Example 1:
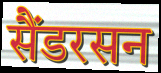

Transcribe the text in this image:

सैंडरसन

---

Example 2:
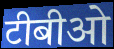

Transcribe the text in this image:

टीबीओ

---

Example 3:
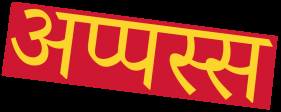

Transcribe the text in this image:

अप्पस्स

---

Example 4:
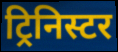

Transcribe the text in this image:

ट्रिनिस्टर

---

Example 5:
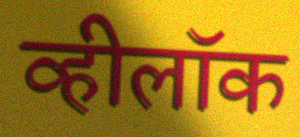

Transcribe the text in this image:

व्हीलॉक